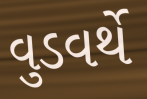
વુડવર્થે